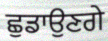
ਛੁਡਾਉਣਗੇ